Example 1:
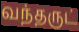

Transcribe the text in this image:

வந்தருட்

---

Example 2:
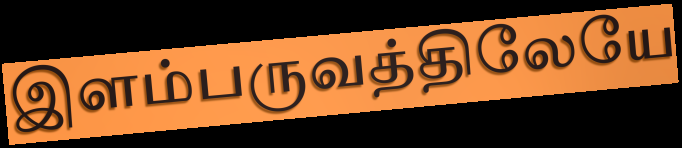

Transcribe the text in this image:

இளம்பருவத்திலேயே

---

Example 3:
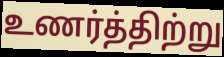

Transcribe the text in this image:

உணர்த்திற்று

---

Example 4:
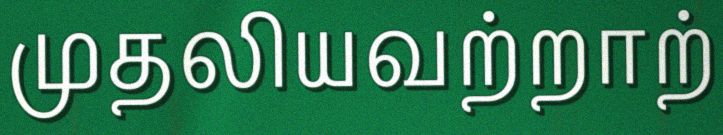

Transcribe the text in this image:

முதலியவற்றாற்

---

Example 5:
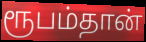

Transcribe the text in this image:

ரூபம்தான்